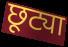
छूट्या